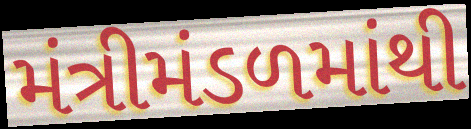
મંત્રીમંડળમાંથી